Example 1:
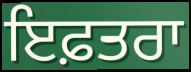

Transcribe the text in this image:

ਇਫ਼ਤਰਾ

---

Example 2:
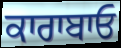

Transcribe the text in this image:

ਕਾਰਾਬਾਓ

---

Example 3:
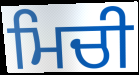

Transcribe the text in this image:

ਮਿਚੀ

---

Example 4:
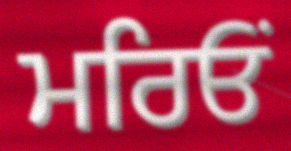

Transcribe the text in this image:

ਮਰਿਓਂ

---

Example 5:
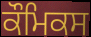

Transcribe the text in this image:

ਕੌਮਿਕਸ